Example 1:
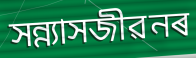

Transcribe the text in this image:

সন্ন্যাসজীৱনৰ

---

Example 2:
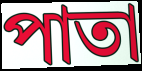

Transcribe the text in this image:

পাতা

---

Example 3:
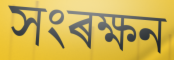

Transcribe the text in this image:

সংৰক্ষন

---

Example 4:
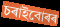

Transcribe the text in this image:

চৰাইবোৰৰ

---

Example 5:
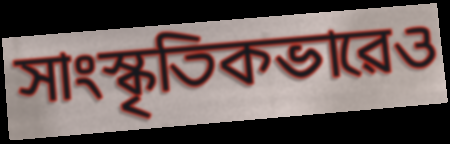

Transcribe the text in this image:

সাংস্কৃতিকভাৱেও